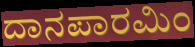
ದಾನಪಾರಮಿಂ